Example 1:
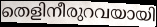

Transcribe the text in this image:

തെളിനീരുറവയായി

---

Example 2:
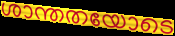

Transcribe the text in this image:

ശാന്തതയോടെ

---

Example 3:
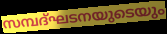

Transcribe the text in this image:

സമ്പദ്ഘടനയുടെയും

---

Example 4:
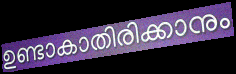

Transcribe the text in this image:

ഉണ്ടാകാതിരിക്കാനും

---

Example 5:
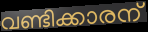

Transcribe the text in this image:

വണ്ടിക്കാരന്